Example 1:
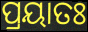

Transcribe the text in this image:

ପ୍ରୟାତଃ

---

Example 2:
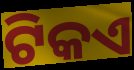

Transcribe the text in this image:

ଟିକଏ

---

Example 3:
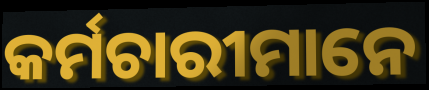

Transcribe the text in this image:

କର୍ମଚାରୀମାନେ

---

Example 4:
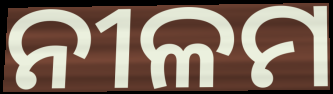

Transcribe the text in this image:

ନୀଳମ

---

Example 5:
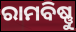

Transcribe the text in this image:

ରାମବିଷ୍ଣୁ